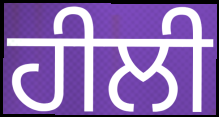
ਹੀਲੀ